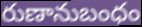
రుణానుబంధం